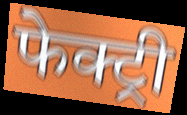
फेक्ट्री